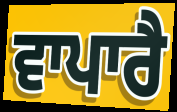
ਵਾਪਾਰੈ